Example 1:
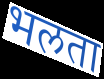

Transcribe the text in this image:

भलता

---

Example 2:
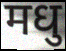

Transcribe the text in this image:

मधु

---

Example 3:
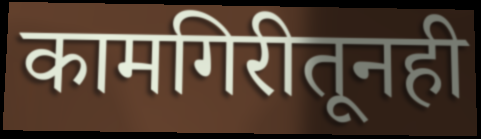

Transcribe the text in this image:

कामगिरीतूनही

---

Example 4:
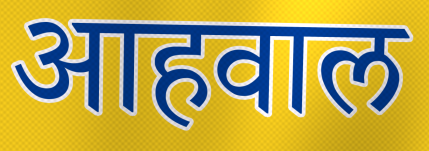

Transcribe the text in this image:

आहवाल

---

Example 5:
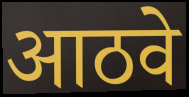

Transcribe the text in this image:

आठवे